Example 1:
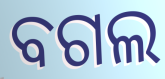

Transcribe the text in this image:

ବଗଲ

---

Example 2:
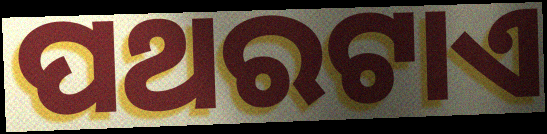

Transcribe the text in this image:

ପଥରଟାଏ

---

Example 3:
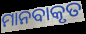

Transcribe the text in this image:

ମାନବାକୃତ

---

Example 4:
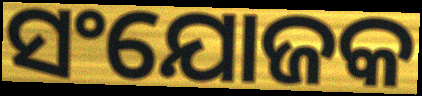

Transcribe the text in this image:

ସଂଯୋଜକ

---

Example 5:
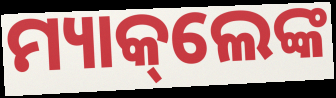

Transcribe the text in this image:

ମ୍ୟାକ୍‌ଲେଙ୍କ